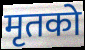
मृतको